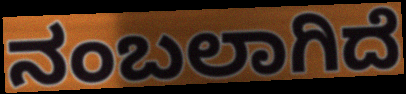
ನಂಬಲಾಗಿದೆ